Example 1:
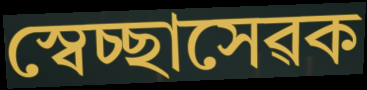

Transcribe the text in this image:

স্বেচ্ছাসেৱক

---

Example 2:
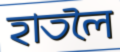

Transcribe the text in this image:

হাতলৈ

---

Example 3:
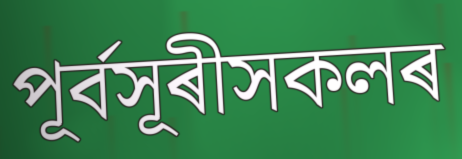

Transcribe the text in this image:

পূৰ্বসূৰীসকলৰ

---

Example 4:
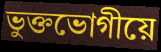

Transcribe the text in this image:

ভুক্তভোগীয়ে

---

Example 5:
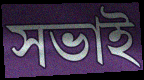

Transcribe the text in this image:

সভাই